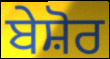
ਬੇਸ਼ੋਰ